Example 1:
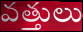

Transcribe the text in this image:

వత్తులు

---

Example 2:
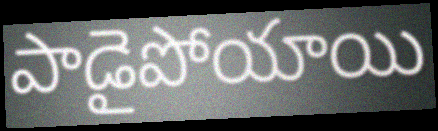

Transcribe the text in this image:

పాడైపోయాయి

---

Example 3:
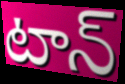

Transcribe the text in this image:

టాన్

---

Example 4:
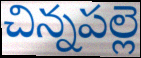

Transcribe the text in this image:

చిన్నపల్లె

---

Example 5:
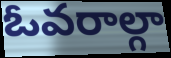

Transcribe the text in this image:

ఓవరాల్గా